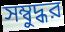
সম্বুদ্ধর